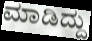
ಮಾಡಿದ್ದು